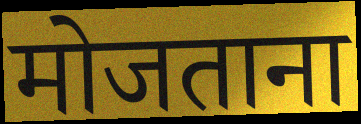
मोजताना